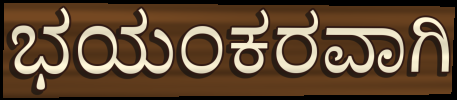
ಭಯಂಕರವಾಗಿ